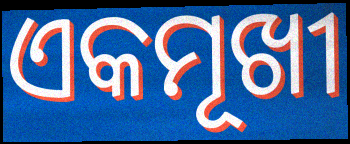
ଏକମୂଖୀ